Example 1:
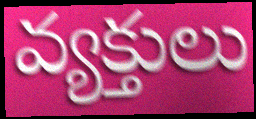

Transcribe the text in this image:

వ్యక్తులు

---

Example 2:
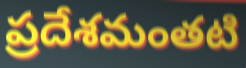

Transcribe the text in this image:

ప్రదేశమంతటి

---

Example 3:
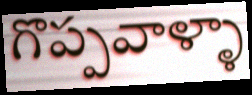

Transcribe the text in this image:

గొప్పవాళ్ళా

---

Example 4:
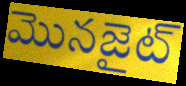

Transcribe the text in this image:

మొనజైట్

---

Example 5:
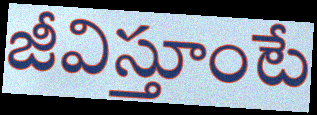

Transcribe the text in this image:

జీవిస్తూంటే